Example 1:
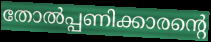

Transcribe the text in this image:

തോൽപ്പണിക്കാരന്റെ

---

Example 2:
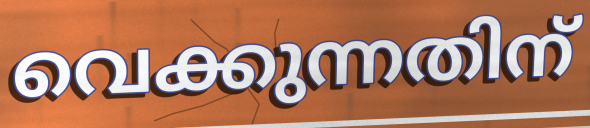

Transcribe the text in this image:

വെക്കുന്നതിന്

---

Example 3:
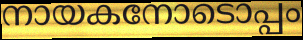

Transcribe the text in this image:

നായകനോടൊപ്പം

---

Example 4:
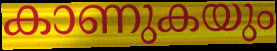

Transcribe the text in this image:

കാണുകയും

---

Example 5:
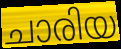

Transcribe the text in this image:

ചാരിയ